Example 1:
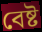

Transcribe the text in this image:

বেষ্ট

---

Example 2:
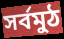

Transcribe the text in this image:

সৰ্বমুঠ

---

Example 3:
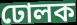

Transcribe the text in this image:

ঢোলক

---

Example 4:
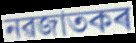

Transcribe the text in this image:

নৱজাতকৰ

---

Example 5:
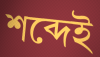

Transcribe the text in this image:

শব্দেই